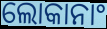
ଲୋକାନାଂ